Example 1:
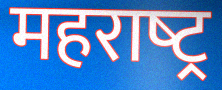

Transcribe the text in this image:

महराष्‍ट्र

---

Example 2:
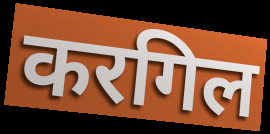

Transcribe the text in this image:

करगिल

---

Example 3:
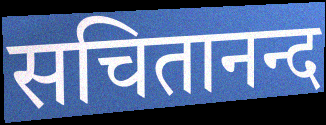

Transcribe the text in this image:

सचितानन्द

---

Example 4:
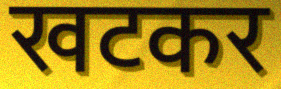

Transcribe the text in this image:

खटकर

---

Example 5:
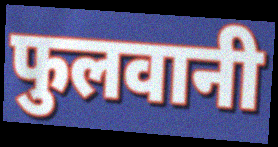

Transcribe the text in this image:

फुलवानी